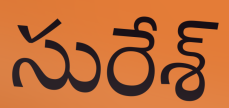
సురేశ్